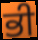
ਭੀ